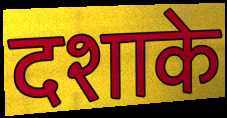
दशाके